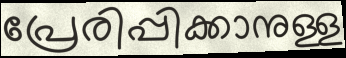
പ്രേരിപ്പിക്കാനുള്ള